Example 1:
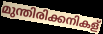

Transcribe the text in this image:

മുന്തിരിക്കനികള്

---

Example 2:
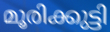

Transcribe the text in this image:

മൂരിക്കുട്ടി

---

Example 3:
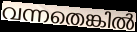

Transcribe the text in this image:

വന്നതെങ്കിൽ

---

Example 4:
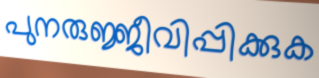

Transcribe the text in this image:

പുനരുജ്ജീവിപ്പിക്കുക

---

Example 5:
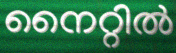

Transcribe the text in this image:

നൈറ്റിൽ